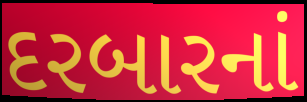
દરબારનાં